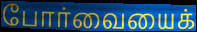
போர்வையைக்